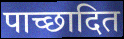
पाच्छादित